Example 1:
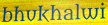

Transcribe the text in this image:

bhukhalwi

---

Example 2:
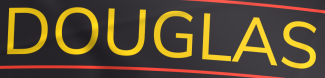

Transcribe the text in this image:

DOUGLAS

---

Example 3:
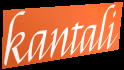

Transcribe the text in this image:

kantali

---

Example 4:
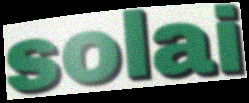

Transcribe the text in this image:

solai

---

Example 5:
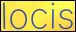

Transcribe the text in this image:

locis